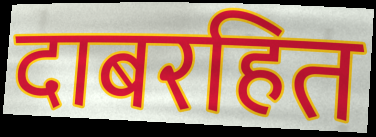
दाबरहित